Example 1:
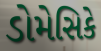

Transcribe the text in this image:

ડોમેસિકે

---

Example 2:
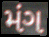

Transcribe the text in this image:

મંગ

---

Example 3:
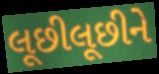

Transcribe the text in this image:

લૂછીલૂછીને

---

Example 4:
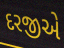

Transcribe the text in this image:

દરજીએ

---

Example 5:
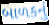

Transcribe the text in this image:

બાળકનું